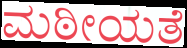
ಮಠೀಯತೆ